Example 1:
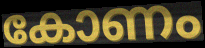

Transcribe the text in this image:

കോണം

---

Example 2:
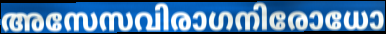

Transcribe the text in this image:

അസേസവിരാഗനിരോധോ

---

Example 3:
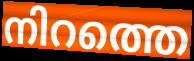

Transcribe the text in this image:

നിറത്തെ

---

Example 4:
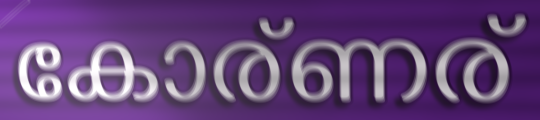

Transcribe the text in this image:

കോര്ണര്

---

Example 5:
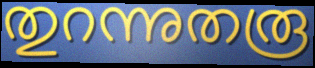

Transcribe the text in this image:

തുറന്നുതരൂ